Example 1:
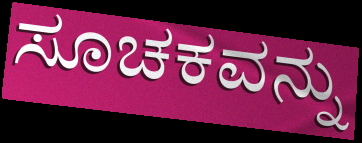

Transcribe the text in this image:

ಸೂಚಕವನ್ನು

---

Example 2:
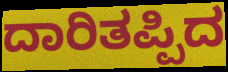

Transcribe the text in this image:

ದಾರಿತಪ್ಪಿದ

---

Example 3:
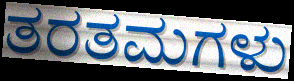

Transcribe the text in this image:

ತರತಮಗಳು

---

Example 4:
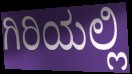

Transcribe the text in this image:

ಗಿರಿಯಲ್ಲಿ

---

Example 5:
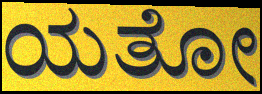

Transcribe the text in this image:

ಯತೋ